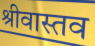
श्रीवास्तव